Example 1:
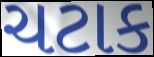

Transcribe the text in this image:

ચટાક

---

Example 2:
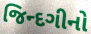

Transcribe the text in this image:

જિન્દગીનો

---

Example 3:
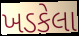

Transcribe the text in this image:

ખડકેલા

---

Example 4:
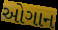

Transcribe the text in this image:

ઓગાન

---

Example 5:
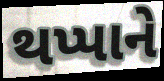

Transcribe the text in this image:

થપ્પાને